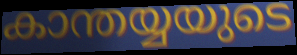
കാന്തയ്യയുടെ